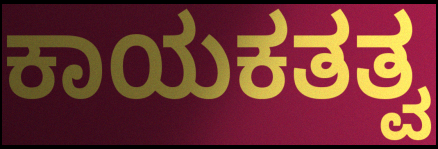
ಕಾಯಕತತ್ವ